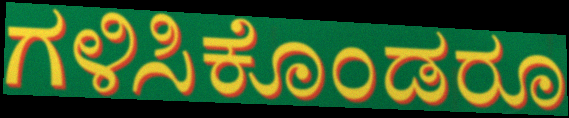
ಗಳಿಸಿಕೊಂಡರೂ